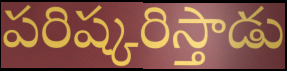
పరిష్కరిస్తాడు